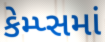
કેમ્પ્સમાં